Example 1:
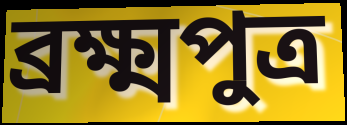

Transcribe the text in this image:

ব্ৰক্ষ্মপুত্ৰ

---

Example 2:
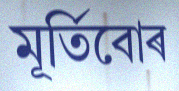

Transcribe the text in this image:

মূৰ্তিবোৰ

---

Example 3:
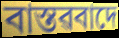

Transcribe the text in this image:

বাস্তৱবাদে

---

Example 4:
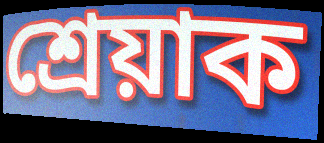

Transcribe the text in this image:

শ্ৰেয়াক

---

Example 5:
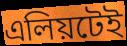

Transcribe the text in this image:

এলিয়টেই